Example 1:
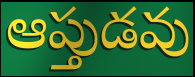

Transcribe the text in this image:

ఆప్తుడవు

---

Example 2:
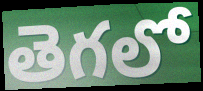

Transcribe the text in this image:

తెగలో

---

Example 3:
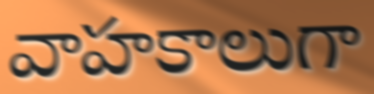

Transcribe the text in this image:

వాహకాలుగా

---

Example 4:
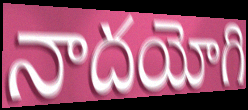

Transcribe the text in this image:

నాదయోగి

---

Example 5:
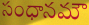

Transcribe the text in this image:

సంధానమౌ